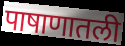
पाषाणातली